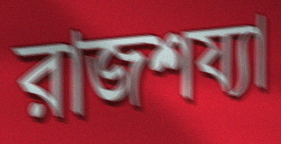
রাজশয্যা